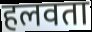
हलवता